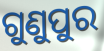
ଗୁଣୁପୁର